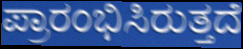
ಪ್ರಾರಂಭಿಸಿರುತ್ತದೆ